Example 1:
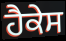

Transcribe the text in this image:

ਹੈਕੇਸ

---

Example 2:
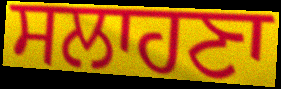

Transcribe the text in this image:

ਸਲਾਹਣਾ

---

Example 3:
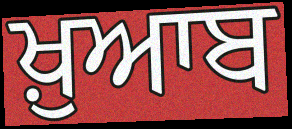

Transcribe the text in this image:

ਖ਼ੁਆਬ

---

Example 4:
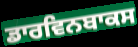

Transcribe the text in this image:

ਡਾਰਵਿਨਬਾਕਸ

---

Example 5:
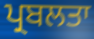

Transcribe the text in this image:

ਪ੍ਰਬਲਤਾ